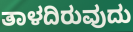
ತಾಳದಿರುವುದು